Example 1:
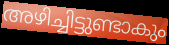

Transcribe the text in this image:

അഴിച്ചിട്ടുണ്ടാകും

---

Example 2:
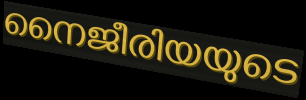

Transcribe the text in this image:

നൈജീരിയയുടെ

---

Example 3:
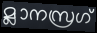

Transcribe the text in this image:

മ്ലാനസ്രഗ്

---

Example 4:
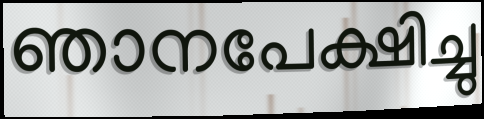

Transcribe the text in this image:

ഞാനപേക്ഷിച്ചു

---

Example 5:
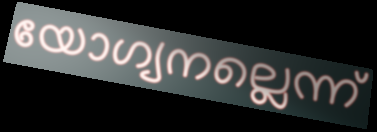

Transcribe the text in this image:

യോഗ്യനല്ലെന്ന്